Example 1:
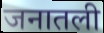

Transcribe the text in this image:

जनातली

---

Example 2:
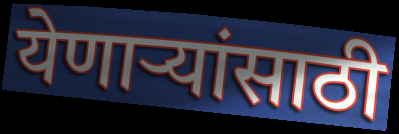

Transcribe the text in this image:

येणाऱ्यांसाठी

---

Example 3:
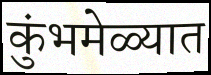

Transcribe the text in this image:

कुंभमेळ्यात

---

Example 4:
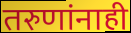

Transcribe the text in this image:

तरुणांनाही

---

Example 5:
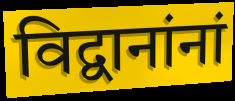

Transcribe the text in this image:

विद्वानांनां